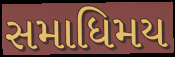
સમાધિમય